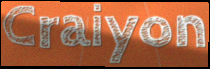
Craiyon